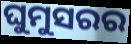
ଘୁମୁସରର